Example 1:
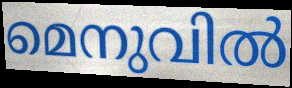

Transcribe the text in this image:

മെനുവിൽ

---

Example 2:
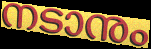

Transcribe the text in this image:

നടാനും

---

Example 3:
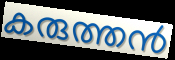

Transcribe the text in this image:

കരുത്തൻ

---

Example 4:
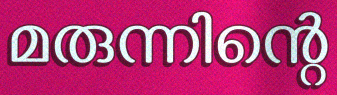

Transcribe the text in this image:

മരുന്നിന്റെ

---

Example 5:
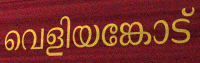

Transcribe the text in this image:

വെളിയങ്കോട്